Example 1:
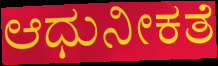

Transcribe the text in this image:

ಆಧುನೀಕತೆ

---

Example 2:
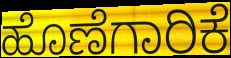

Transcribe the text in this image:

ಹೊಣೆಗಾರಿಕೆ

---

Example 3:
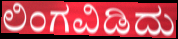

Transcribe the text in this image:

ಲಿಂಗವಿಡಿದು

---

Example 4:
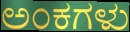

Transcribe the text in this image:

ಅಂಕಗಳು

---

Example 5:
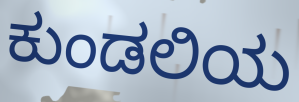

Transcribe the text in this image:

ಕುಂಡಲಿಯ